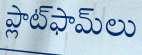
ప్లాట్‌ఫామ్‌లు